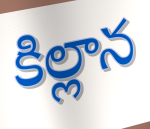
కిల్లాన